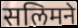
सलिमने